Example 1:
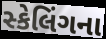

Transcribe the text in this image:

સ્કેલિંગના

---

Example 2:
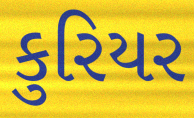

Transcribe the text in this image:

કુરિયર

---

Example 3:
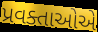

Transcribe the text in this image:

પ્રવક્તાઓએ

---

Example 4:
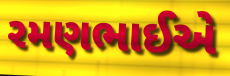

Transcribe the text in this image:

રમણભાઈએ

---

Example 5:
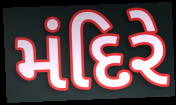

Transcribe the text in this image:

મંદિરે